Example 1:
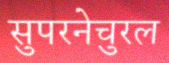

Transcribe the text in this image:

सुपरनेचुरल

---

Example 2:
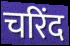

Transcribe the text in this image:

चरिंद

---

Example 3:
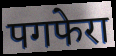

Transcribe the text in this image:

पगफेरा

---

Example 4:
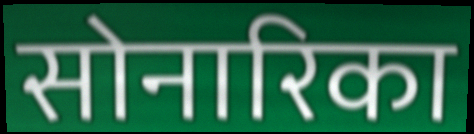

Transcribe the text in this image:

सोनारिका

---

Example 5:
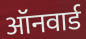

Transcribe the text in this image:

ऑनवार्ड